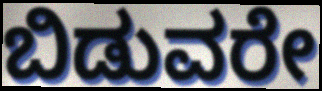
ಬಿಡುವರೇ